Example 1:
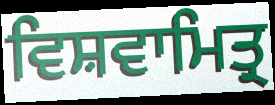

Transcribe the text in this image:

ਵਿਸ਼ਵਾਮਿਤ੍ਰ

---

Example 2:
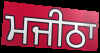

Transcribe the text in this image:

ਮਜੀਠਾ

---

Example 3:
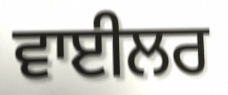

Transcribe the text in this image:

ਵਾਈਲਰ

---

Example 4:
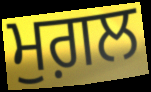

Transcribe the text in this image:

ਮੁਗ਼ਲ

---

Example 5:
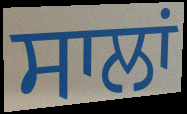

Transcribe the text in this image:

ਸਾਲਾਂ